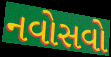
નવોસવો